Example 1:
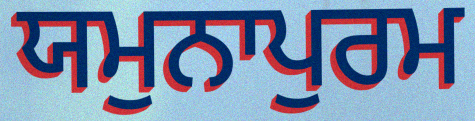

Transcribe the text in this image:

ਯਮੁਨਾਪੁਰਮ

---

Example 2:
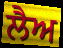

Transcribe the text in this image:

ਲੈਅ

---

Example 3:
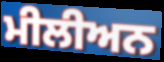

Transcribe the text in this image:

ਮੀਲੀਅਨ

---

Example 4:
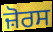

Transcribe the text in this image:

ਜ਼ੋਰਸ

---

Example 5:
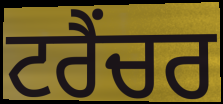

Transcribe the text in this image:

ਟਰੈਂਚਰ